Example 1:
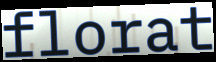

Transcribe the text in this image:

florat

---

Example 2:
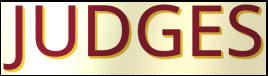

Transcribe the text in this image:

JUDGES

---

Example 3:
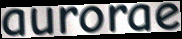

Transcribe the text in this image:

aurorae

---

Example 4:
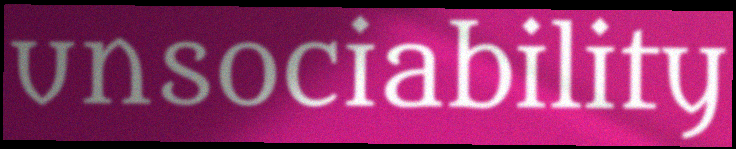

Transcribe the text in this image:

unsociability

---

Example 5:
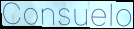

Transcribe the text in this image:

Consuelo